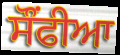
ਸੌਂਫੀਆ